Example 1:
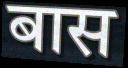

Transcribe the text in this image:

बास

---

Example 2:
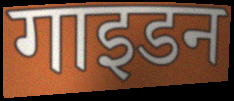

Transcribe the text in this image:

गाइडन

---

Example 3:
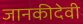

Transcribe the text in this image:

जानकीदेवी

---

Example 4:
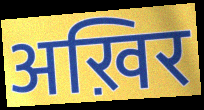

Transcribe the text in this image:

अख़िर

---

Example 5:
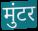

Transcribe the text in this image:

मुंटर